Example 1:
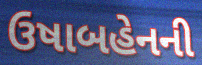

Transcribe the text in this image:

ઉષાબહેનની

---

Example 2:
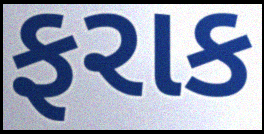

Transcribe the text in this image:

ફરાક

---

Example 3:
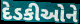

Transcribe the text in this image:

દેડકીઓને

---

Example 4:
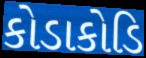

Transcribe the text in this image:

કોડાકોડિ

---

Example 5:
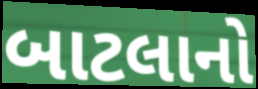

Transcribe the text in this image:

બાટલાનો